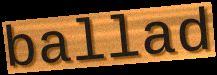
ballad